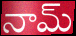
నామ్